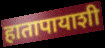
हातापायाशी